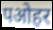
पओहर